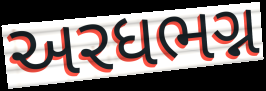
અરધભગ્ન